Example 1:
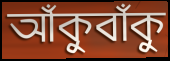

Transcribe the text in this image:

আঁকুবাঁকু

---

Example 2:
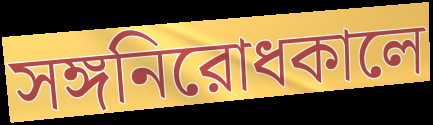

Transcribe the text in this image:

সঙ্গনিরোধকালে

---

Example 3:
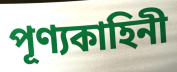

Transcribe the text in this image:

পূণ্যকাহিনী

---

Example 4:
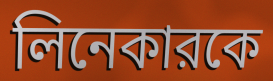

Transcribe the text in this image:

লিনেকারকে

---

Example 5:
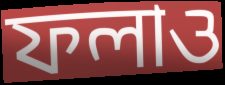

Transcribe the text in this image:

ফলাও